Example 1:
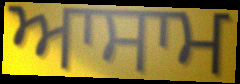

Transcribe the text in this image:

ਆਸਾਮ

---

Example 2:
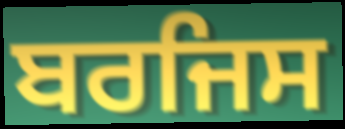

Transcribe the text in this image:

ਬਰਜਿਸ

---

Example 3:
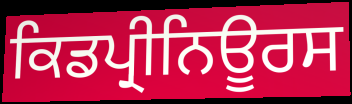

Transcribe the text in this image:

ਕਿਡਪ੍ਰੀਨਿਊਰਸ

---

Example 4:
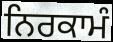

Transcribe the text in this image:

ਨਿਰਕਾਮੰ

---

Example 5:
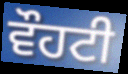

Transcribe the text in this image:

ਵੌਹਟੀ